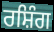
ਰਸ਼ਿੰਗ